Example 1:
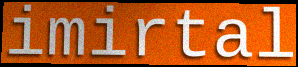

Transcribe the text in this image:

imirtal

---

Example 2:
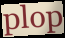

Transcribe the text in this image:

plop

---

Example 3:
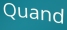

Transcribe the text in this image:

Quand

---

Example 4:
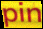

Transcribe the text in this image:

pin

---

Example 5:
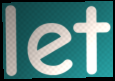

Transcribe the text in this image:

let